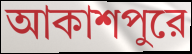
আকাশপুরে